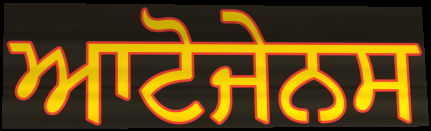
ਆਟੋਜੇਨਸ